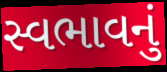
સ્વભાવનું